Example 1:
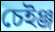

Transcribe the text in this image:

চেইঞ্জ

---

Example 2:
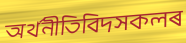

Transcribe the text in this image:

অৰ্থনীতিবিদসকলৰ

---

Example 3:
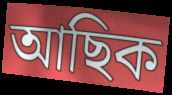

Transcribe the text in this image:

আছিক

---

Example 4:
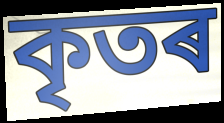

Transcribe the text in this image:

কৃতৰ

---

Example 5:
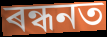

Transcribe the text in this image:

ৰন্ধনত